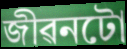
জীৱনটো